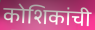
कोशिकांची